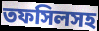
তফসিলসহ